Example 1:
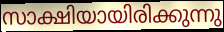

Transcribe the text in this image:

സാക്ഷിയായിരിക്കുന്നു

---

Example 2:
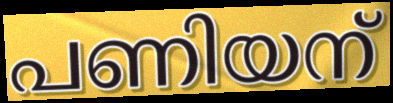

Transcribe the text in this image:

പണിയന്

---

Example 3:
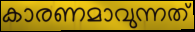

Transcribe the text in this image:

കാരണമാവുന്നത്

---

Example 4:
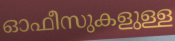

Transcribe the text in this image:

ഓഫീസുകളുള്ള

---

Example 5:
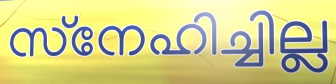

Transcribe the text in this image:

സ്‌നേഹിച്ചില്ല